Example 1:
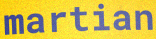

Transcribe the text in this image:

martian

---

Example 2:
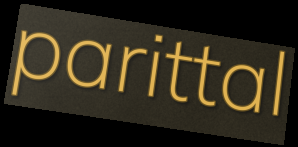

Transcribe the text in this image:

parittal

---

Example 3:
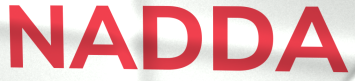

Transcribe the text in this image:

NADDA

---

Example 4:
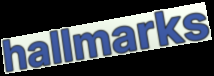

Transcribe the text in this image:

hallmarks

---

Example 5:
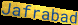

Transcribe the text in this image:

Jafrabad